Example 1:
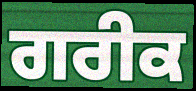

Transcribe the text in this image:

ਗਰੀਕ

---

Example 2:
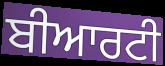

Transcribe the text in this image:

ਬੀਆਰਟੀ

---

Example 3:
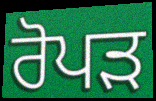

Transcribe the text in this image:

ਰੋਪਡ਼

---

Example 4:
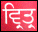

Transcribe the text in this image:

ਵ੍ਰਿਤ੍ਰ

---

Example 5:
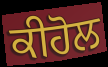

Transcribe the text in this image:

ਕੀਹੋਲ